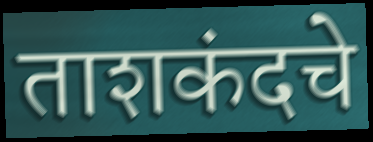
ताशकंदचे